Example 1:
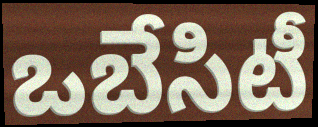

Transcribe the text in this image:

ఒబేసిటీ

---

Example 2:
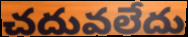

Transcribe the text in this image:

చదువలేదు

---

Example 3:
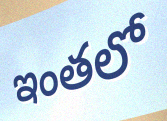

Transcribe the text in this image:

ఇంతలో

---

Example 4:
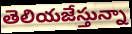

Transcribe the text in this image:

తెలియజేస్తున్నా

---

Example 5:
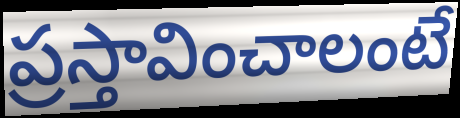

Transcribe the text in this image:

ప్రస్తావించాలంటే